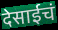
देसाईचं